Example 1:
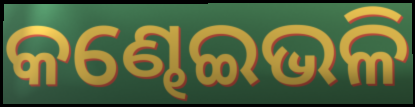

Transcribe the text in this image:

କଣ୍ଢେଇଭଳି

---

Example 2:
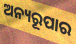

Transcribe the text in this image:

ଅନ୍ୟରୂପାର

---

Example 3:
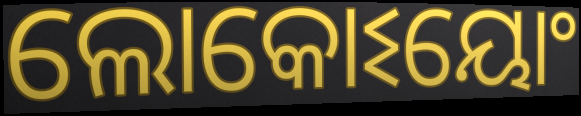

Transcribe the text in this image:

ଲୋକୋଽୟୋଂ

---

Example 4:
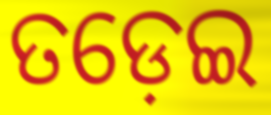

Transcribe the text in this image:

ତଡ଼େଇ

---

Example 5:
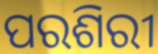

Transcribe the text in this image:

ପରଶିରୀ